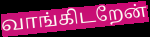
வாங்கிடறேன்